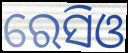
ରେସିଓ